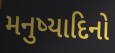
મનુષ્યાદિનો